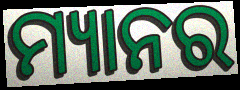
ମ୍ୟାନର